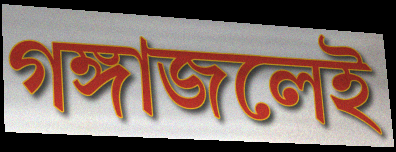
গঙ্গাজলেই